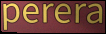
perera